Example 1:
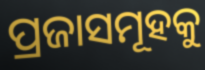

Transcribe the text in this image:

ପ୍ରଜାସମୂହକୁ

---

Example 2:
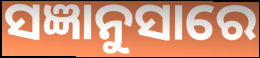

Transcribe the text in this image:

ସଜ୍ଞାନୁସାରେ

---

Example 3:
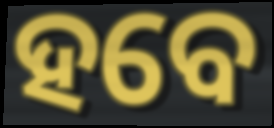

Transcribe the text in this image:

ହବେ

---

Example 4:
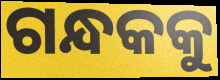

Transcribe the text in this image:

ଗନ୍ଧକକୁ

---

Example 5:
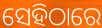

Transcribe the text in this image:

ସେହିଠାରେ